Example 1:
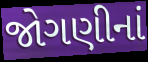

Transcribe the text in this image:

જોગણીનાં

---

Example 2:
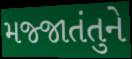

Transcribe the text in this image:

મજ્જાતંતુને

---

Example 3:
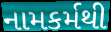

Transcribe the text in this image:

નામકર્મથી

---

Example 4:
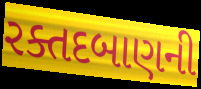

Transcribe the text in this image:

રક્તદબાણની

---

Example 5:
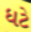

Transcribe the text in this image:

ધટે